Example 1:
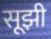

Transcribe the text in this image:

सूझी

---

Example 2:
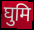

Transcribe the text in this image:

घुमि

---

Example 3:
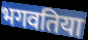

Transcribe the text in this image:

भगवतिया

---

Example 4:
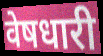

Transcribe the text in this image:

वेषधारी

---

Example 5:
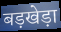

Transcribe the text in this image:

बड़खेड़ा